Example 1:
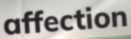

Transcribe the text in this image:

affection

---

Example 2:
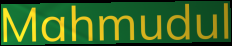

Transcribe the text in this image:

Mahmudul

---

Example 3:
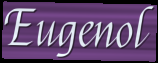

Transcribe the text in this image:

Eugenol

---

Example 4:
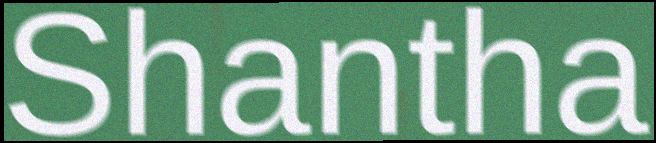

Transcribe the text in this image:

Shantha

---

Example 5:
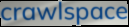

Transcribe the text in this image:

crawlspace